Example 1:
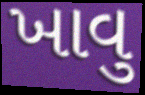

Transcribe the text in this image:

ખાવુ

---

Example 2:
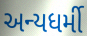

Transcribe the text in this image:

અન્યધર્મી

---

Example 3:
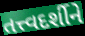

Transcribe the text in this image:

તત્ત્વદર્શીને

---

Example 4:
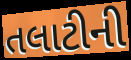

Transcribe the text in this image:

તલાટીની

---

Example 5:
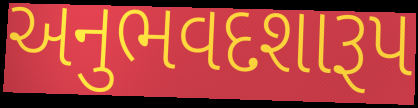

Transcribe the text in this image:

અનુભવદશારૂપ